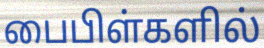
பைபிள்களில்